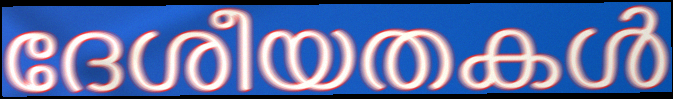
ദേശീയതകൾ